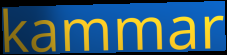
kammar